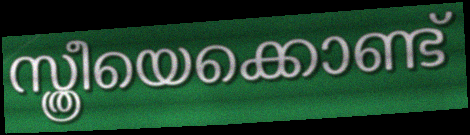
സ്ത്രീയെക്കൊണ്ട്